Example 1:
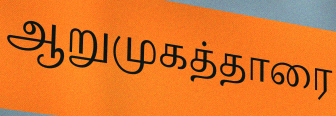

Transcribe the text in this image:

ஆறுமுகத்தாரை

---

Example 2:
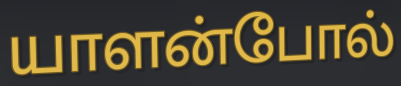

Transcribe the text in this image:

யாளன்போல்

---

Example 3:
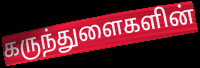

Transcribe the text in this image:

கருந்துளைகளின்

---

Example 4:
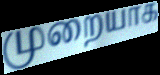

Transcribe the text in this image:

முறையாக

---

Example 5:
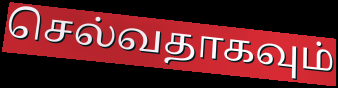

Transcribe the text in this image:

செல்வதாகவும்